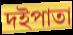
দইপাতা